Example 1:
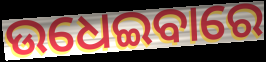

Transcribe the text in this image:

ଉଧେଇବାରେ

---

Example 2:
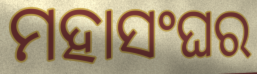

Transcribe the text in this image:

ମହାସଂଘର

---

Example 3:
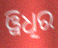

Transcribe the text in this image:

ୱିଧିର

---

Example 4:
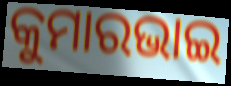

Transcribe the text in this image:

କୁମାରଭାଇ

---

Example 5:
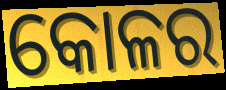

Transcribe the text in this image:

କୋଳର